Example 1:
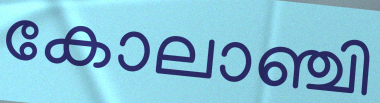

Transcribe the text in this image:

കോലാഞ്ചി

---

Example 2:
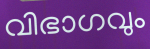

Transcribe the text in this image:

വിഭാഗവും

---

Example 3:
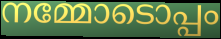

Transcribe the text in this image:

നമ്മോടൊപ്പം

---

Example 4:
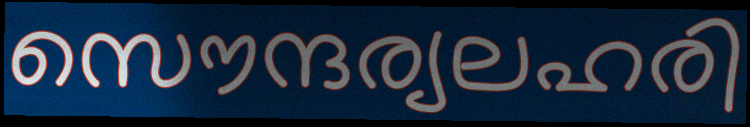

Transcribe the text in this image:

സൌന്ദര്യലഹരി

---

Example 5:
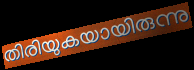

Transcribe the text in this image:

തിരിയുകയായിരുന്നു